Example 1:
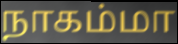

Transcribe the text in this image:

நாகம்மா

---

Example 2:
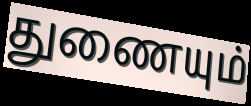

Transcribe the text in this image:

துணையும்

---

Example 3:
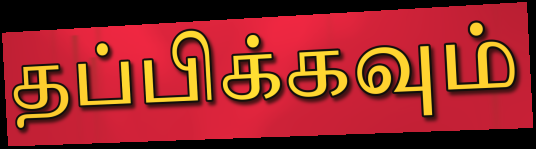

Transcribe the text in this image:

தப்பிக்கவும்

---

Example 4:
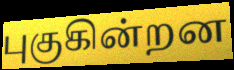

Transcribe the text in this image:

புகுகின்றன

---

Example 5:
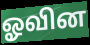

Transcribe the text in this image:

ஓவின